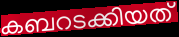
കബറടക്കിയത്